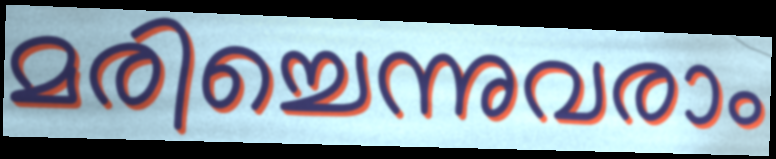
മരിച്ചെന്നുവരാം